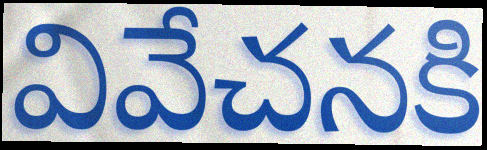
వివేచనకి